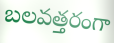
బలవత్తరంగా